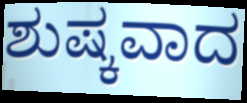
ಶುಷ್ಕವಾದ